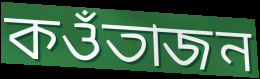
কওঁতাজন